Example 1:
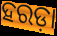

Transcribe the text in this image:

ହରଡ଼ା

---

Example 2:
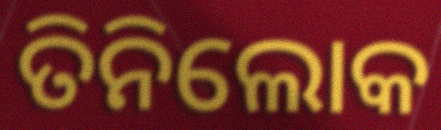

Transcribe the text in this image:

ତିନିଲୋକ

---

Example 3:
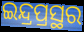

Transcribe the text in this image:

ଇନ୍ଦ୍ରପ୍ରସ୍ଥର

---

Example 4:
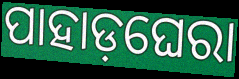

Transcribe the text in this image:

ପାହାଡ଼ଘେରା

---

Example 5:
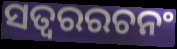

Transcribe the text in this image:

ସତ୍ୱରରଚନଂ